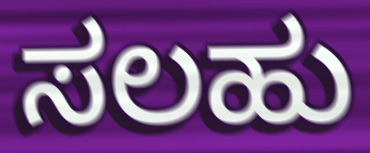
ಸಲಹು